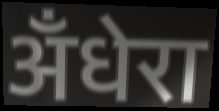
अँधेरा